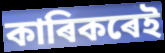
কাৰিকৰেই